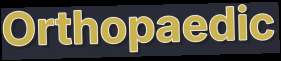
Orthopaedic